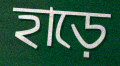
হাড়ে